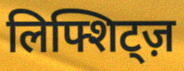
लिफ्शिट्ज़